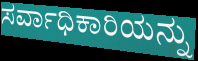
ಸರ್ವಾಧಿಕಾರಿಯನ್ನು